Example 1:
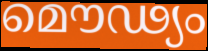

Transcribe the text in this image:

മൌഢ്യം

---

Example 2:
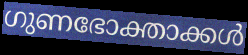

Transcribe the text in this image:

ഗുണഭോക്താക്കൾ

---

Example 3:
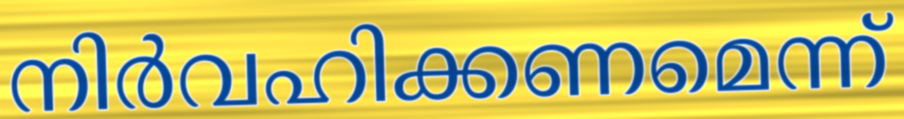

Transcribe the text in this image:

നിർവഹിക്കണമെന്ന്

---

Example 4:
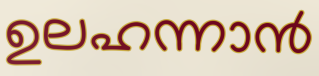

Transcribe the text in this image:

ഉലഹന്നാൻ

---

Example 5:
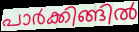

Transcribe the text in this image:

പാർക്കിങ്ങിൽ